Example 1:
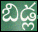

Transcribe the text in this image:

బిడ్ల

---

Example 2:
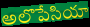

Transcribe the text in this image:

అలొపేసియా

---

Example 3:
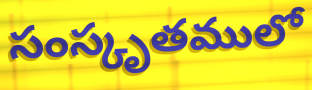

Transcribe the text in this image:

సంస్కృతములో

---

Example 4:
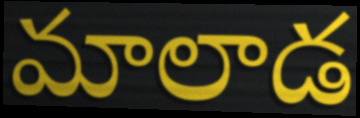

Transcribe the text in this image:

మాలాడ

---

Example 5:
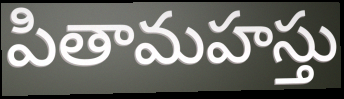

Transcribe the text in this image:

పితామహస్తు